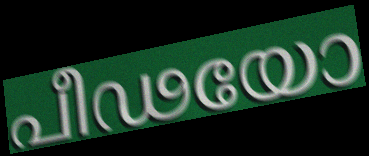
പീഢയോ